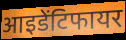
आइडेंटिफायर